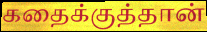
கதைக்குத்தான்